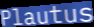
Plautus